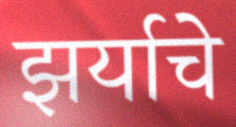
झर्याचे